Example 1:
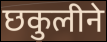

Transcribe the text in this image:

छकुलीने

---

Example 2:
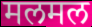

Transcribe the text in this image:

मलमल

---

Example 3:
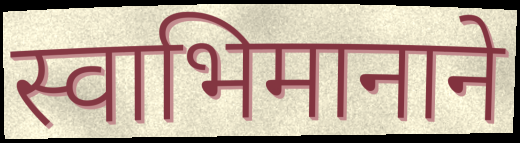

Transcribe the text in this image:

स्वाभिमानाने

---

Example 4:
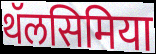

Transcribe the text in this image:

थॅलसिमिया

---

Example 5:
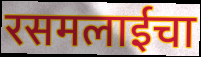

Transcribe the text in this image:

रसमलाईचा